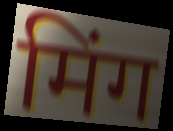
मिंग